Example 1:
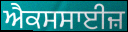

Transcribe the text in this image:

ਐਕਸਸਾਈਜ਼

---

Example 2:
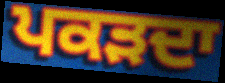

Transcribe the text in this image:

ਪਕੜਦਾ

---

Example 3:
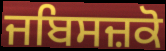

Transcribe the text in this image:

ਜਬਿਸਜ਼ਕੋ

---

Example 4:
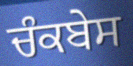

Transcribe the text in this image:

ਚੰਕਬੇਸ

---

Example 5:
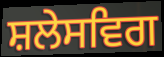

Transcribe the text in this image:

ਸ਼ਲੇਸਵਿਗ